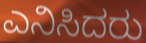
ಎನಿಸಿದರು